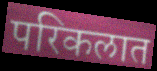
परिकलात